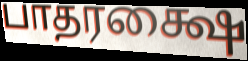
பாதரக்ஷை